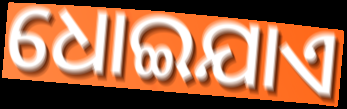
ଧୋଇଯାଏ